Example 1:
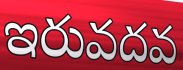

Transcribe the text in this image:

ఇరువదవ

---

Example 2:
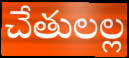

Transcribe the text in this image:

చేతులల్ల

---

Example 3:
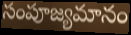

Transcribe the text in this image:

సంపూజ్యమానం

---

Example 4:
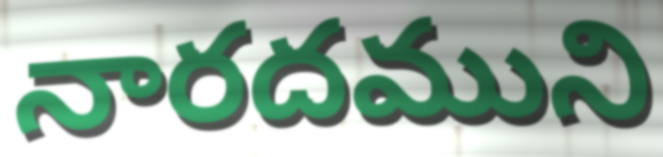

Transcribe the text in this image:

నారదముని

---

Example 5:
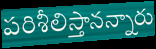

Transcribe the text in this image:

పరిశీలిస్తానన్నారు